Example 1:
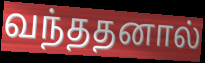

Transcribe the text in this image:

வந்ததனால்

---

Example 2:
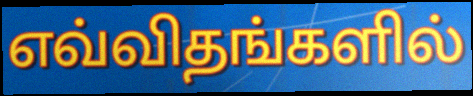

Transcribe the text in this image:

எவ்விதங்களில்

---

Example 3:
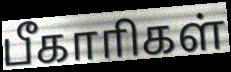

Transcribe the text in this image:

பீகாரிகள்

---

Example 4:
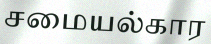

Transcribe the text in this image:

சமையல்கார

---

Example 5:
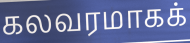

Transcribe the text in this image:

கலவரமாகக்